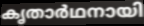
കൃതാർഥനായി